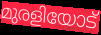
മുരളിയോട്